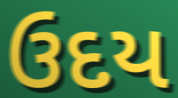
ઉદય